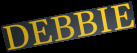
DEBBIE